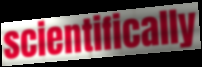
scientifically